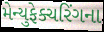
મેન્યુફેક્ચરિંગના